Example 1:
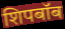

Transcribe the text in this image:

शिपबॉब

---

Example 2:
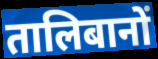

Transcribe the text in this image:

तालिबानों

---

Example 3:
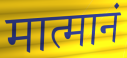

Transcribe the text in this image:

मात्मानं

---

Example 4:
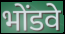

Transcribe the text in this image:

भोंडवे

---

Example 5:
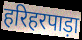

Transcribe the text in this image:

हरिहरपाड़ा